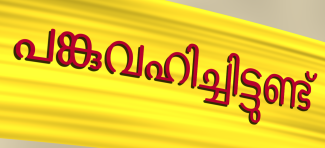
പങ്കുവഹിച്ചിട്ടുണ്ട്